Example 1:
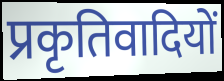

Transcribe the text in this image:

प्रकृतिवादियों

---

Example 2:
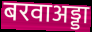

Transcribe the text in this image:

बरवाअड्डा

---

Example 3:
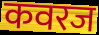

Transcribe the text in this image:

कवरज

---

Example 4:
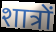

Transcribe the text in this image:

शात्रों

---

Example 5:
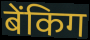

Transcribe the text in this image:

बेंकिग